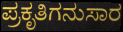
ಪ್ರಕೃತಿಗನುಸಾರ